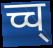
च्च्